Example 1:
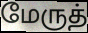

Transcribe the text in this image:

மேருத்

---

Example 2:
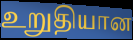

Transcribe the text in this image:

உறுதியான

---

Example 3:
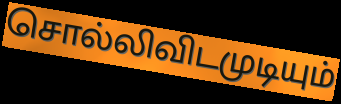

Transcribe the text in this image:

சொல்லிவிடமுடியும்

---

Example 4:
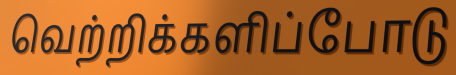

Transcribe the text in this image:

வெற்றிக்களிப்போடு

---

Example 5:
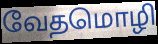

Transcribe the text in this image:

வேதமொழி